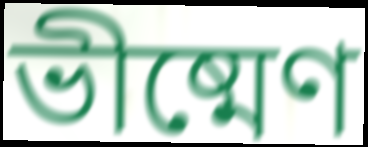
ভীষ্মেণ